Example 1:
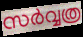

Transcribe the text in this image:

സർവ്വത്ര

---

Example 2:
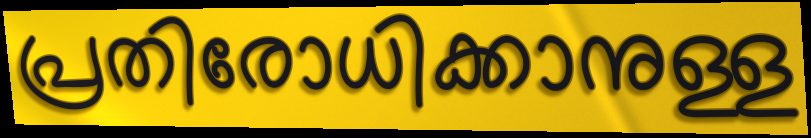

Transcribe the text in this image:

പ്രതിരോധിക്കാനുള്ള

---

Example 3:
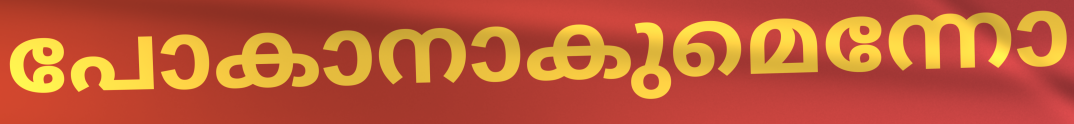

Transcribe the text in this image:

പോകാനാകുമെന്നോ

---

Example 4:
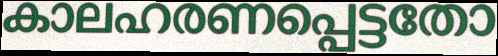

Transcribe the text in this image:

കാലഹരണപ്പെട്ടതോ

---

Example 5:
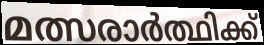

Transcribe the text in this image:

മത്സരാർത്ഥിക്ക്